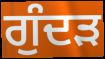
ਗੁੰਦੜ